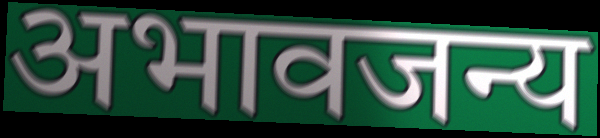
अभावजन्य